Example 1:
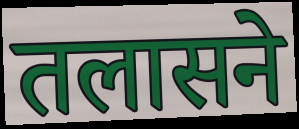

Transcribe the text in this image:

तलासने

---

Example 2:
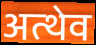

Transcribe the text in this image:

अत्थेव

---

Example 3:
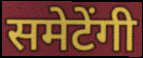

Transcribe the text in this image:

समेटेंगी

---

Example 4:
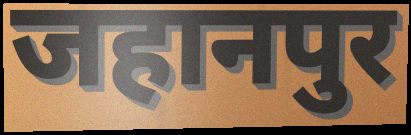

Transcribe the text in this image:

जहानपुर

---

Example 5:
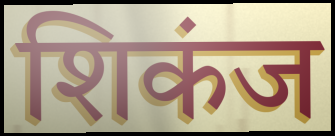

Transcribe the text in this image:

शिकंज